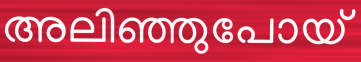
അലിഞ്ഞുപോയ്